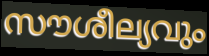
സൗശീല്യവും